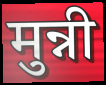
मुन्नी